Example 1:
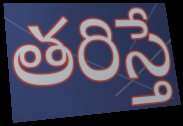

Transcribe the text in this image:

తరిస్తే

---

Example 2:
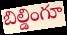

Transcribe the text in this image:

బిల్డింగూ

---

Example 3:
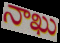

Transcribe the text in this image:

నాఖు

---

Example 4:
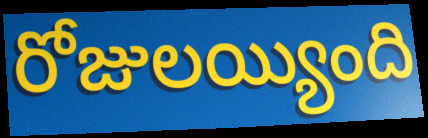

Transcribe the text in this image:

రోజులయ్యింది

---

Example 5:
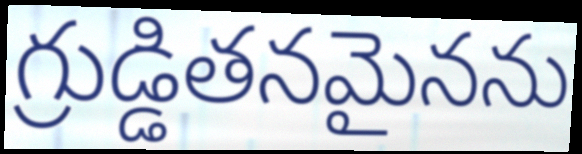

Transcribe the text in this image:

గ్రుడ్డితనమైనను